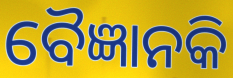
ବୈଜ୍ଞାନକି